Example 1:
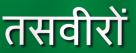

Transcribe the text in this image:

तसवीरों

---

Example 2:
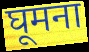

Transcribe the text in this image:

घूमना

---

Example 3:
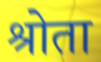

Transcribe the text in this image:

श्रोता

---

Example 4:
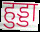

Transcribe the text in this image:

हुड्डा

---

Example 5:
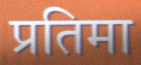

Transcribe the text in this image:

प्रतिमा